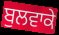
ਬੁਲਵਾਕੇ